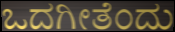
ಒದಗೀತೆಂದು